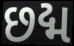
છદ્મ